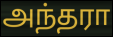
அந்தரா